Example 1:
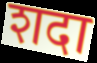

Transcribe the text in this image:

शदा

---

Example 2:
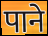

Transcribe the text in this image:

पाने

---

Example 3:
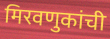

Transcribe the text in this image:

मिरवणुकांची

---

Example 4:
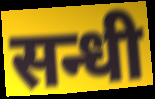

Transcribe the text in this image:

सन्धी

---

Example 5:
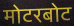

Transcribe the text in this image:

मोटरबोट